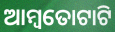
ଆମ୍ବତୋଟାଟି